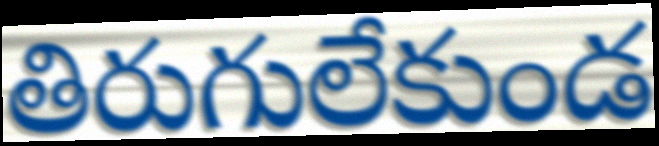
తిరుగులేకుండ